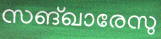
സങ്ഖാരേസു